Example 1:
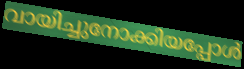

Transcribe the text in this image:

വായിച്ചുനോക്കിയപ്പോൾ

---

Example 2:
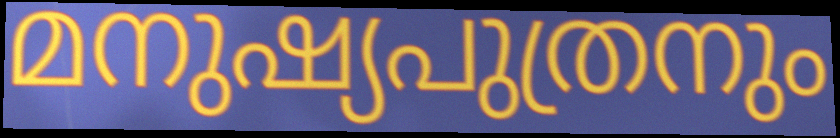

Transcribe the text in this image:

മനുഷ്യപുത്രനും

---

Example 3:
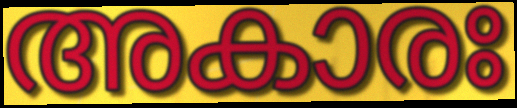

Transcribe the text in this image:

അകാരഃ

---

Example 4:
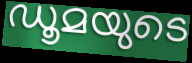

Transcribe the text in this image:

ഡൂമയുടെ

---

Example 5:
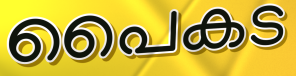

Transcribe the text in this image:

പൈകട